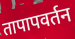
तापापवर्तन